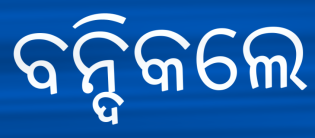
ବନ୍ଦିକଲେ